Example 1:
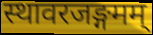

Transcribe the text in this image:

स्थावरजङ्गमम्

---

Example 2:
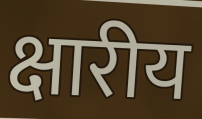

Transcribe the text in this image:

क्षारीय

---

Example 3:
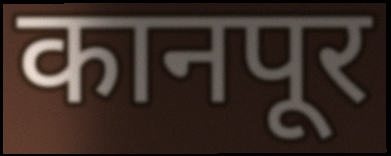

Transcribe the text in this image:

कानपूर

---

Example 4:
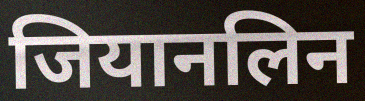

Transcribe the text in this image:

जियानलिन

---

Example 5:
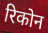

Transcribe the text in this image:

रिकोन